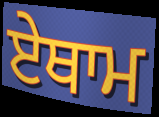
ਏਥਾਮ